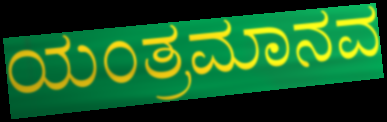
ಯಂತ್ರಮಾನವ